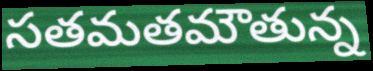
సతమతమౌతున్న